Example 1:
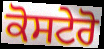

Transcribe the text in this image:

ਕੋਸਟੇਰੋ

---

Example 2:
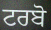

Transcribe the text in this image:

ਟਰਬੋ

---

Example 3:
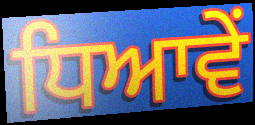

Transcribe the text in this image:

ਧਿਆਵੇਂ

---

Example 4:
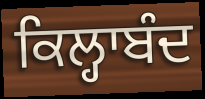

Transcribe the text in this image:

ਕਿਲ੍ਹਾਬੰਦ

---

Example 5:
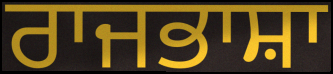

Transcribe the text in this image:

ਰਾਜਭਾਸ਼ਾ